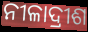
ନୀଳାଦ୍ରୀଶ